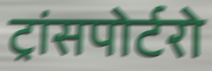
ट्रांसपोर्टरो